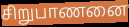
சிறுபாணனை